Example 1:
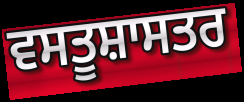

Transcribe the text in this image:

ਵਸਤੂਸ਼ਾਸਤਰ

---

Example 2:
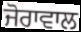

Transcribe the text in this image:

ਜੋਰਾਵਾਲ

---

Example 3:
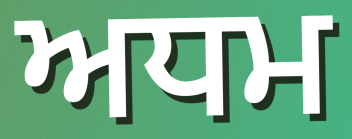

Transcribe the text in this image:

ਅਧਮ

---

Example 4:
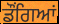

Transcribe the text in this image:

ਡੌਂਗਿਆਂ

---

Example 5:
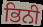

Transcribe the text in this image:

ਭਿਨੀ